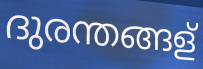
ദുരന്തങ്ങള്